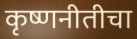
कृष्णनीतीचा